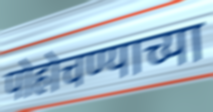
पोहोचण्याच्या